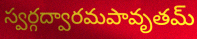
స్వర్గద్వారమపావృతమ్